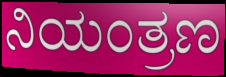
ನಿಯಂತ್ರಣ